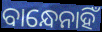
ବାନ୍ଧେନାହିଁ